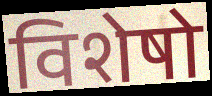
विशेषो